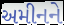
અમીનને